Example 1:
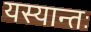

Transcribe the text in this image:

यस्यान्तः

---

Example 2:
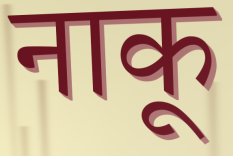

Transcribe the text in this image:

नाकू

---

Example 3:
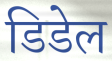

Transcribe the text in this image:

डिडेल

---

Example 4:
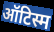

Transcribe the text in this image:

ऑटिस्म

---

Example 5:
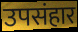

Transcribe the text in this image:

उपसंहार